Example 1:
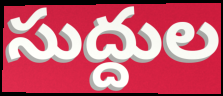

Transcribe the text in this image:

సుద్దుల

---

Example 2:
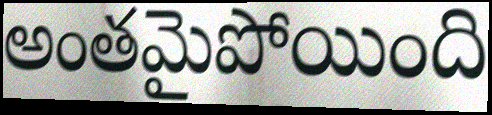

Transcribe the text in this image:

అంతమైపోయింది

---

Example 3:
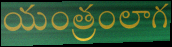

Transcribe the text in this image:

యంత్రంలాగ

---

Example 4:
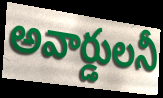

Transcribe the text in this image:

అవార్డులనీ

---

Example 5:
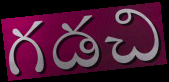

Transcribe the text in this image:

గడచి